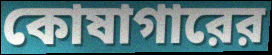
কোষাগারের